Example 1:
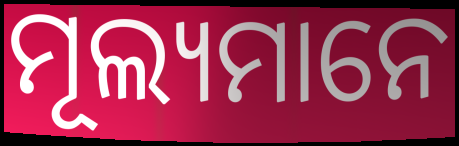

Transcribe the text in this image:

ମୂଲ୍ୟମାନେ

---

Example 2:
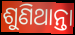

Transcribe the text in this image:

ଶୁଣିଥାନ୍ତା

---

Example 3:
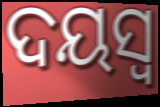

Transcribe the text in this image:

ଦୟସ୍ଵ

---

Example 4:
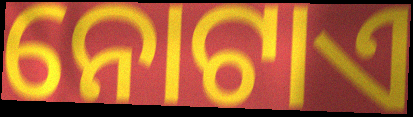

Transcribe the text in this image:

ନୋଟାଏ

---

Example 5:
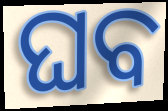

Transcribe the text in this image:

ଘବ